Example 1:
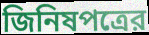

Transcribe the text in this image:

জিনিষপত্রের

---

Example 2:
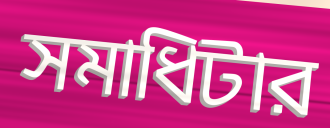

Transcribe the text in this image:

সমাধিটার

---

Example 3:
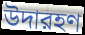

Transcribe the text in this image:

উদারহণ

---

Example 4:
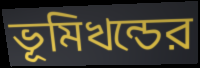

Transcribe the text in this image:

ভূমিখন্ডের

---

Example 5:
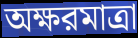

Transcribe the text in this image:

অক্ষরমাত্রা